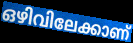
ഒഴിവിലേക്കാണ്